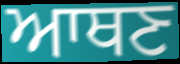
ਆਥਣ